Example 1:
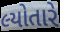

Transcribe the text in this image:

લ્યોતારે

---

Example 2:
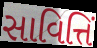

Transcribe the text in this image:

સાવિત્તિં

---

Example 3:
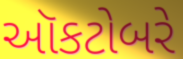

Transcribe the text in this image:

ઑકટોબરે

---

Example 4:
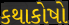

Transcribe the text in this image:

કથાકોષો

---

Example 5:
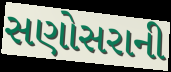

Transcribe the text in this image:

સણોસરાની